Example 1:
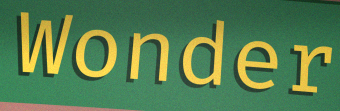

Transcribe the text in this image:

Wonder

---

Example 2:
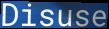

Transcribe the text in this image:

Disuse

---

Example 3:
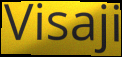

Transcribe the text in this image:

Visaji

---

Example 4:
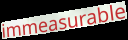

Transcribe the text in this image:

immeasurable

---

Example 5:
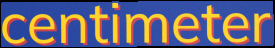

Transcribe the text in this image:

centimeter